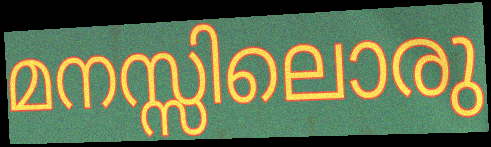
മനസ്സിലൊരു